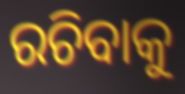
ରଚିବାକୁ